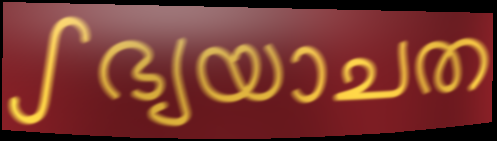
ഽഭ്യയാചത